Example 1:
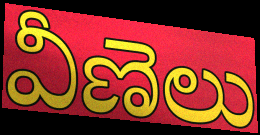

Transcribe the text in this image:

వీణెలు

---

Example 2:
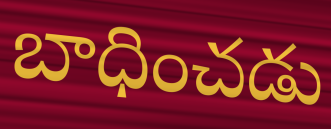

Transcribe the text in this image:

బాధించడు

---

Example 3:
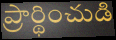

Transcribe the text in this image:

ప్రార్థించుడి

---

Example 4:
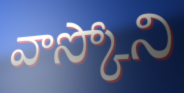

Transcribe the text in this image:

వాస్కోని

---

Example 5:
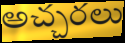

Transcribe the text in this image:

అచ్చరలు